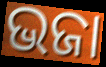
ଭଜା